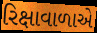
રિક્ષાવાળાએ